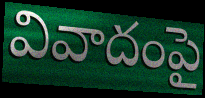
వివాదంపై